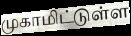
முகாமிட்டுள்ள